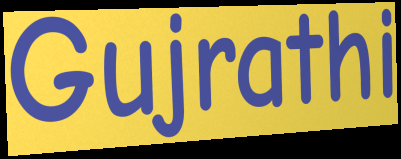
Gujrathi